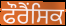
ਫੌਰੈਂਸਿਕ